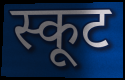
स्कूट